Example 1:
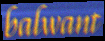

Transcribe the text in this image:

balwant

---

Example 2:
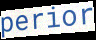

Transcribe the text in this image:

perior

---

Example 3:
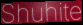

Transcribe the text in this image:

Shuhite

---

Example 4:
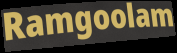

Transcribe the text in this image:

Ramgoolam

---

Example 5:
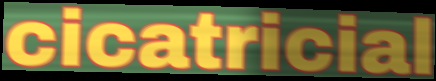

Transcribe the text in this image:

cicatricial